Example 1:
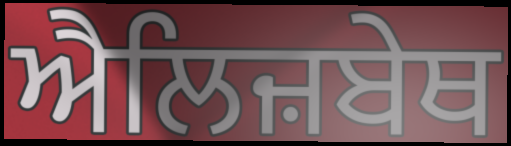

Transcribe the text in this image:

ਐਲਿਜ਼ਬੇਥ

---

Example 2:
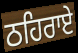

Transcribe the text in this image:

ਠਹਿਰਾਏ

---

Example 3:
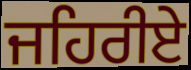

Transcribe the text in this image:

ਜਹਿਰੀਏ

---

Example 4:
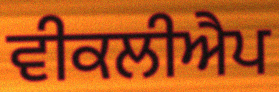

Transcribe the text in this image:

ਵੀਕਲੀਐਪ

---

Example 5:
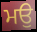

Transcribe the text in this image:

ਮਉ